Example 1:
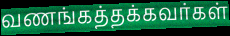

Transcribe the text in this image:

வணங்கத்தக்கவர்கள்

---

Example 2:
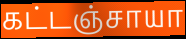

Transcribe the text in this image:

கட்டஞ்சாயா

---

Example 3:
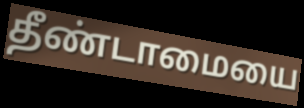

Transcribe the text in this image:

தீண்டாமையை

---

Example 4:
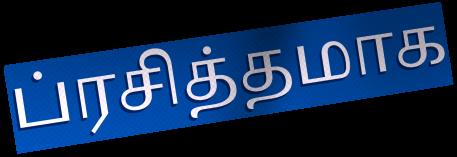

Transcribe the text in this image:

ப்ரசித்தமாக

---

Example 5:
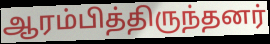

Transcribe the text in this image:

ஆரம்பித்திருந்தனர்